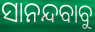
ସାନନ୍ଦବାବୁ